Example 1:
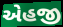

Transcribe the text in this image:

એહજી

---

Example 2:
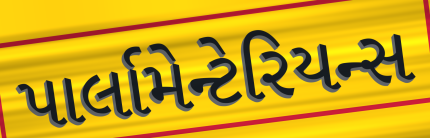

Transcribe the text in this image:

પાર્લામેન્ટેરિયન્સ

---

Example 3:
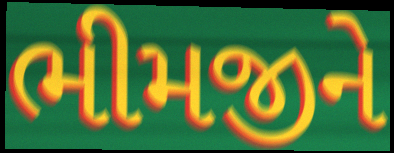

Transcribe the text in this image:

ભીમજીને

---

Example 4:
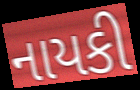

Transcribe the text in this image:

નાયકી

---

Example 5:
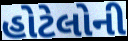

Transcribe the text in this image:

હોટેલોની